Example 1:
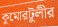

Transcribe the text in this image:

কুমোরটুলীর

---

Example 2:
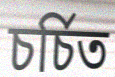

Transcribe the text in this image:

চর্চিত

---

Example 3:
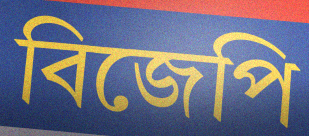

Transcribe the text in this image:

বিজেপি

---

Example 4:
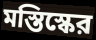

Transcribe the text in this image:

মস্তিস্কের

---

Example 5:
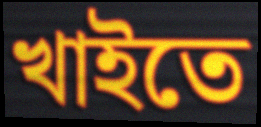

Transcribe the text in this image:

খাইতে